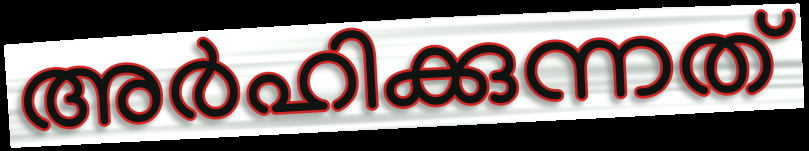
അർഹിക്കുന്നത്